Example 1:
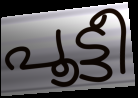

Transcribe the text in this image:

പൂട്ടീ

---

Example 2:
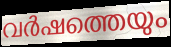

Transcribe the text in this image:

വർഷത്തെയും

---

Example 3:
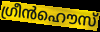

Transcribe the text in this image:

ഗ്രീൻഹൌസ്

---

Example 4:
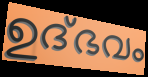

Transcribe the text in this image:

ഉദ്ഭവം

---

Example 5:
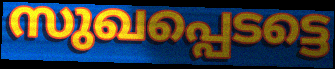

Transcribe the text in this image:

സുഖപ്പെടട്ടെ